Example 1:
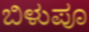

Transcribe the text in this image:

ಬಿಳುಪೂ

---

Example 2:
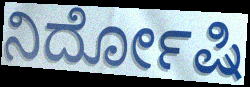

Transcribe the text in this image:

ನಿರ್ದೋಷಿ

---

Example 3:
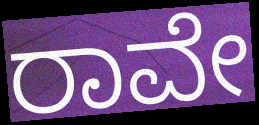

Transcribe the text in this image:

ರಾವೇ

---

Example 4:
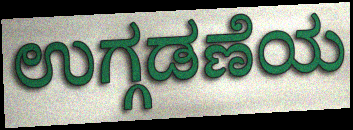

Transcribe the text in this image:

ಉಗ್ಗಡಣೆಯ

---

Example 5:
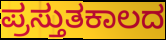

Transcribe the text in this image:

ಪ್ರಸ್ತುತಕಾಲದ